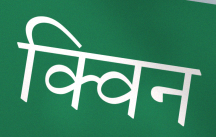
क्विन